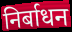
निर्बाधन